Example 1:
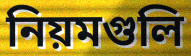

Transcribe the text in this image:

নিয়মগুলি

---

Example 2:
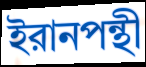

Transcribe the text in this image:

ইরানপন্থী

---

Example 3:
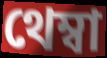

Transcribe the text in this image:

থেম্বা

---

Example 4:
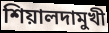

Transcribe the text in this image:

শিয়ালদামুখী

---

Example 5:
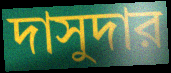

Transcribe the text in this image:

দাসুদার